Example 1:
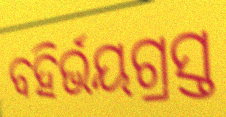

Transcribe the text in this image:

ବହିର୍ଭୟଗ୍ରସ୍ତ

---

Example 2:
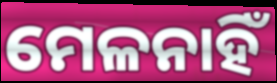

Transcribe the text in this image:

ମେଳନାହିଁ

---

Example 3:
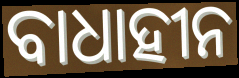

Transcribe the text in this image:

ବାଧାହୀନ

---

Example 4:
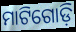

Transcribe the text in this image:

ମାଟିଗୋଡ଼ି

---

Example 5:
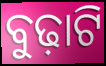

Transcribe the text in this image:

ବୁଢ଼ାଟି